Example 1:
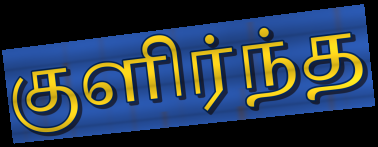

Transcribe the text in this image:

குளிர்ந்த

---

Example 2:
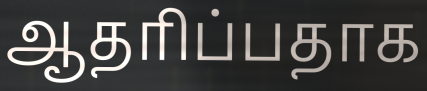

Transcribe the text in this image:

ஆதரிப்பதாக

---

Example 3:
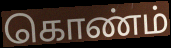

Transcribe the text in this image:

கொண்ம்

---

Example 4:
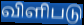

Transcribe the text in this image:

விளிபடு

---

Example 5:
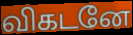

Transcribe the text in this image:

விகடனே